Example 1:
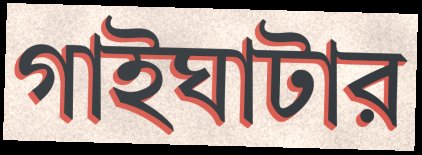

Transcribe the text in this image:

গাইঘাটার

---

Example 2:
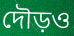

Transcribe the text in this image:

দৌড়ও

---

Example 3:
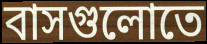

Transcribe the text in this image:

বাসগুলোতে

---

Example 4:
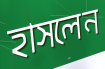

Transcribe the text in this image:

হাসলেন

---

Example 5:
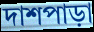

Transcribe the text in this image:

দাশপাড়া